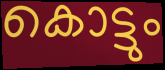
കൊട്ടും